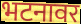
भटनावर